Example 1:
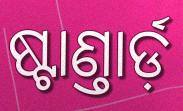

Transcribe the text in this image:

ଷ୍ଟାଣ୍ତାର୍ଡ଼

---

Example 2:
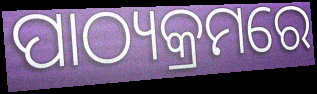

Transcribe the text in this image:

ପାଠ୍ୟକ୍ରମରେ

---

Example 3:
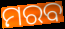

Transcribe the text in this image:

ମରବ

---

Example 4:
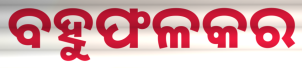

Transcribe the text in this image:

ବହୁଫଳକର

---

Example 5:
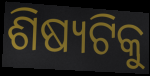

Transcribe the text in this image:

ଶିଷ୍ୟଟିକୁ